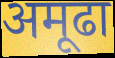
अमूढा